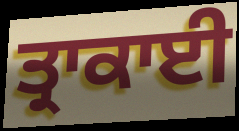
ਤ੍ਰਾਕਾਈ